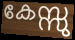
കേസ്സു